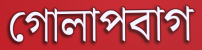
গোলাপবাগ